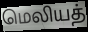
மெலியத்